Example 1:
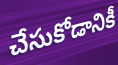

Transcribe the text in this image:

చేసుకోడానికీ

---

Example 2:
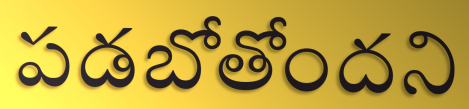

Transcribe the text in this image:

పడబోతోందని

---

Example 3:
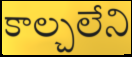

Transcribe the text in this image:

కాల్చలేని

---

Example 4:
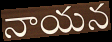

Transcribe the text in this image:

నాయన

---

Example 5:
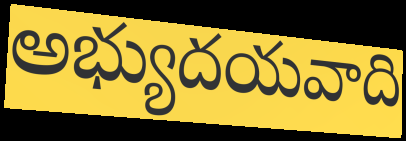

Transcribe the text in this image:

అభ్యుదయవాది